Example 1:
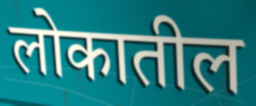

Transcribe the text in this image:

लोकातील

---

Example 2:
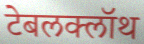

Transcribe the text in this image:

टेबलक्लॉथ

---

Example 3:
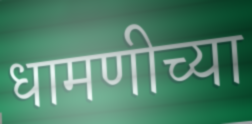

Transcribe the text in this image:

धामणीच्या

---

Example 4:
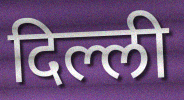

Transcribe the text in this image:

दिल्‍ली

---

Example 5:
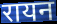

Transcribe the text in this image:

रायन